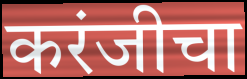
करंजीचा